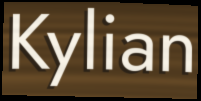
Kylian